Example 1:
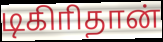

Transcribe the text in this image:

டிகிரிதான்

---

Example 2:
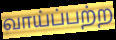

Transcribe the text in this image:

வாய்ப்பற்ற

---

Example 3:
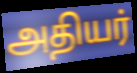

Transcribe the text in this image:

அதியர்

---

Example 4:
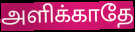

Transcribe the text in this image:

அளிக்காதே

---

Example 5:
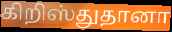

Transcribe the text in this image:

கிறிஸ்துதானா